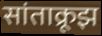
सांताक्रूझ